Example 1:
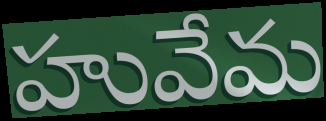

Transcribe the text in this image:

హువేమ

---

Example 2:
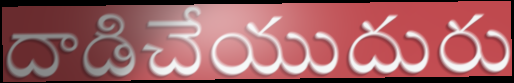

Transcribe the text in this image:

దాడిచేయుదురు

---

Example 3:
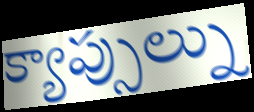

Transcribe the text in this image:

క్యాప్సుల్ను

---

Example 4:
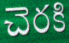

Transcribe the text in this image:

చెరకి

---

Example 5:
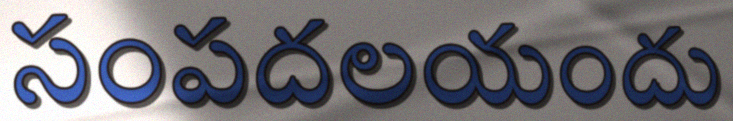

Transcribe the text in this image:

సంపదలయందు